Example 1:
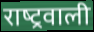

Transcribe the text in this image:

राष्ट्रवाली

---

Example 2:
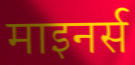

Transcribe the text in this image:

माइनर्स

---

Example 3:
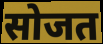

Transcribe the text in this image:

सोजत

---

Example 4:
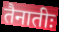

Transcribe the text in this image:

तैनातीः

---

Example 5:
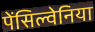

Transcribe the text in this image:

पेंसिल्वेनिया